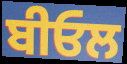
ਬੀਓਲ